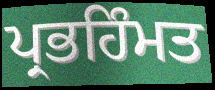
ਪ੍ਰਭਹਿੰਮਤ